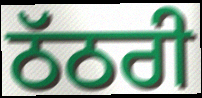
ਠੱਠਰੀ